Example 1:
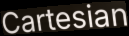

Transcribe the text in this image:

Cartesian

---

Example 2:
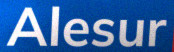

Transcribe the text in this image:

Alesur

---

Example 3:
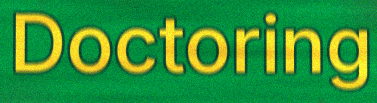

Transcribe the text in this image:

Doctoring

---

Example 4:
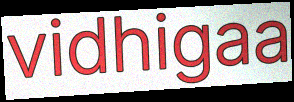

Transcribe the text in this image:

vidhigaa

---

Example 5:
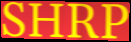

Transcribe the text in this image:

SHRP